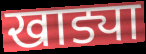
खाड्या